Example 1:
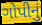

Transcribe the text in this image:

ગોપીનું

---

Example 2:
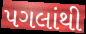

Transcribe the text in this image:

પગલાંથી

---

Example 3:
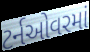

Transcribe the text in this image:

ટર્નઓવરમાં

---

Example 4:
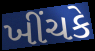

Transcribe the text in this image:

ખીંચકે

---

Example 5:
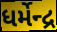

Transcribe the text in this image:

ધર્મેન્દ્ર